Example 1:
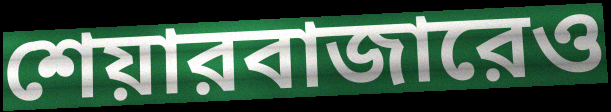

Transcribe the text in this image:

শেয়ারবাজারেও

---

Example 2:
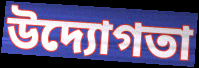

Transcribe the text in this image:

উদ্যোগতা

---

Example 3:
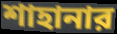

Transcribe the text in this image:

শাহানার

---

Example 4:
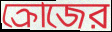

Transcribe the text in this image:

ক্রোজের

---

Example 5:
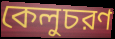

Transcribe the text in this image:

কেলুচরণ